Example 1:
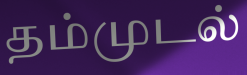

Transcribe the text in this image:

தம்முடல்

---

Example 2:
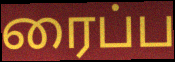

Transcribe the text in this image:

ரைப்ப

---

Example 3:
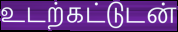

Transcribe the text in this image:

உடற்கட்டுடன்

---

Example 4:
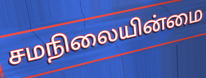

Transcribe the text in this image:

சமநிலையின்மை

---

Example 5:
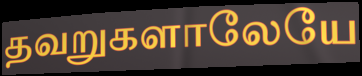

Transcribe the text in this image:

தவறுகளாலேயே